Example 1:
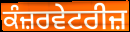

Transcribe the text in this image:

ਕੰਜ਼ਰਵੇਟਰੀਜ਼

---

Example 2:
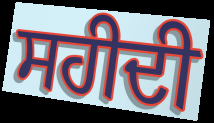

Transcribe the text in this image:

ਸਹੀਦੀ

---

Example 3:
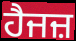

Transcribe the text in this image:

ਹੈਜਜ਼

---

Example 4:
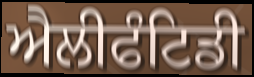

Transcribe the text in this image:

ਐਲੀਫੰਟਿਡੀ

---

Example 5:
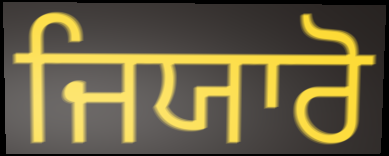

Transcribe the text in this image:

ਜਿਯਾਰੋ